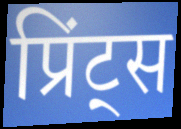
प्रिंट्स